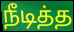
நீடித்த